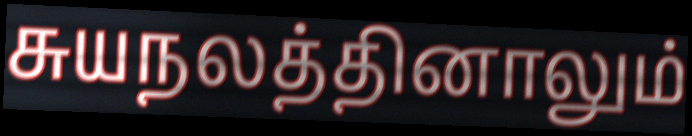
சுயநலத்தினாலும்